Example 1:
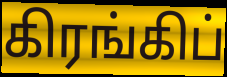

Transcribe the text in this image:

கிரங்கிப்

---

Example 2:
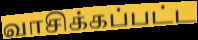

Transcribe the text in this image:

வாசிக்கப்பட்ட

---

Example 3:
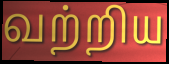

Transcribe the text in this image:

வற்றிய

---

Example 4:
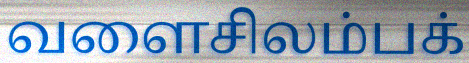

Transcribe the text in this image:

வளைசிலம்பக்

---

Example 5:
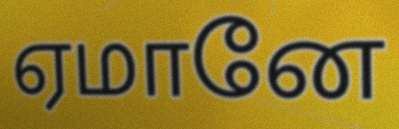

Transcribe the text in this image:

ஏமானே